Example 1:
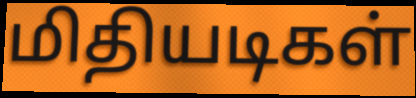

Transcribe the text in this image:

மிதியடிகள்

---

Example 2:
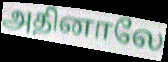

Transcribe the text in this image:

அதினாலே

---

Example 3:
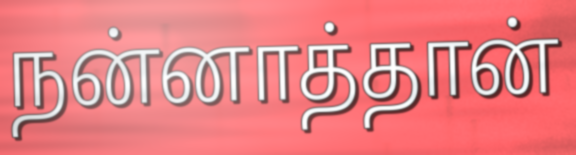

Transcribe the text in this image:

நன்னாத்தான்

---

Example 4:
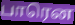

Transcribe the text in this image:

பாரென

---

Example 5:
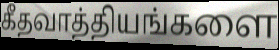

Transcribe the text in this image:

கீதவாத்தியங்களை